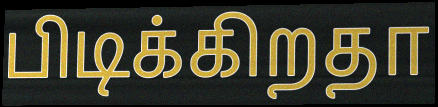
பிடிக்கிறதா